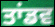
ਤਾਂਡਵ